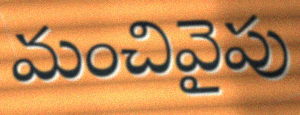
మంచివైపు